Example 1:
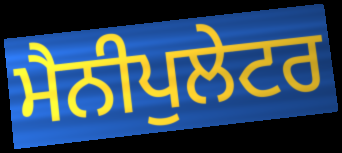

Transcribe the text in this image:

ਮੈਨੀਪੁਲੇਟਰ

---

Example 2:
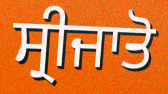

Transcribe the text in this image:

ਸ੍ਰੀਜਾਤੋ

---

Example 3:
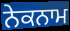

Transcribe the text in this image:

ਨੇਕਨਾਮ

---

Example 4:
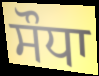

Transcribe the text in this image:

ਸੌਧਾ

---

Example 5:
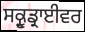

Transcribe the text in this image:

ਸਕ੍ਰੂਡ੍ਰਾਈਵਰ